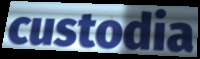
custodia